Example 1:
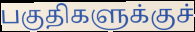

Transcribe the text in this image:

பகுதிகளுக்குச்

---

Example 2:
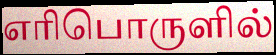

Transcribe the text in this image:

எரிபொருளில்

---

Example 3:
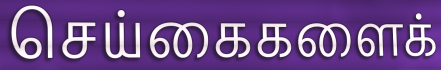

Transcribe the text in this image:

செய்கைகளைக்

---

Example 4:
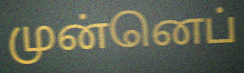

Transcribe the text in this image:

முன்னெப்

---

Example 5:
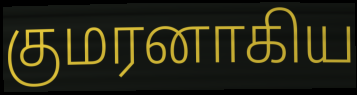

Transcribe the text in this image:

குமரனாகிய